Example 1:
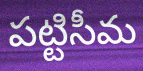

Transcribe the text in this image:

పట్టిసీమ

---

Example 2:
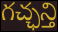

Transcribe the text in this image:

గచ్ఛన్తి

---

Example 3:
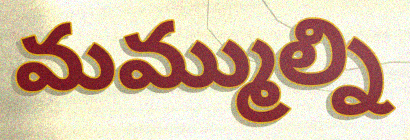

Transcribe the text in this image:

మమ్ముల్ని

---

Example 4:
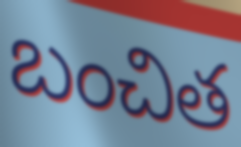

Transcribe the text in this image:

బంచిత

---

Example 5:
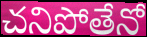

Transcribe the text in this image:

చనిపోతేనో